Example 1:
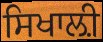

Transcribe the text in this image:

ਸਿਖਾਲ਼ੀ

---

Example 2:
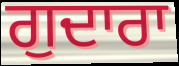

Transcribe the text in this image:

ਗੁਦਾਰਾ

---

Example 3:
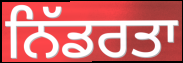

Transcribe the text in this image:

ਨਿੱਡਰਤਾ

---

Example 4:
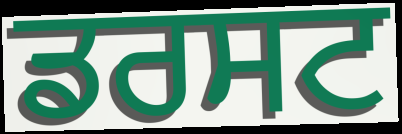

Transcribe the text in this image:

ਡਰਸਟ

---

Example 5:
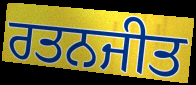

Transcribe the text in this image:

ਰਤਨਜੀਤ